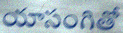
యాసంగితో